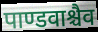
पाण्डवाश्चैव